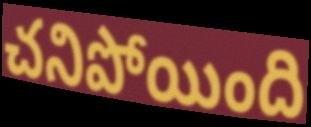
చనిపోయింది